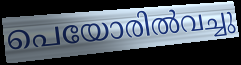
പെയോരിൽവച്ചു